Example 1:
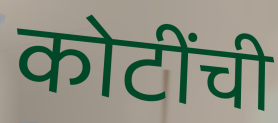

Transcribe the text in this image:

कोटींची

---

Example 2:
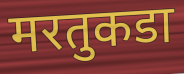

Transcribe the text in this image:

मरतुकडा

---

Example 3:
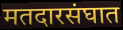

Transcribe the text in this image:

मतदारसंघात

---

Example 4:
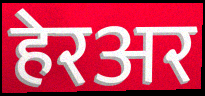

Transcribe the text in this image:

हेरअर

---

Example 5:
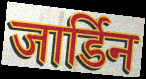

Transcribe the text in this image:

जार्डिन